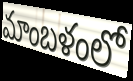
మాంబళంలో